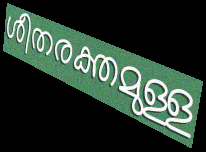
ശീതരക്തമുള്ള